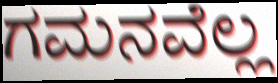
ಗಮನವೆಲ್ಲ